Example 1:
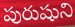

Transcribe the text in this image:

పురుషుని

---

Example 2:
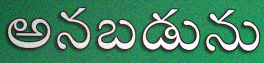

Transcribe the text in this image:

అనబడును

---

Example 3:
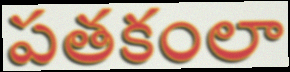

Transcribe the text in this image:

పతకంలా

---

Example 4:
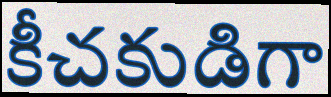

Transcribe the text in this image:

కీచకుడిగా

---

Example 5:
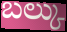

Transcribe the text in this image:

బల్కు